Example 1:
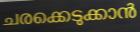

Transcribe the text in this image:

ചരക്കെടുക്കാൻ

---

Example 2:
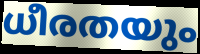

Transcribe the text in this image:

ധീരതയും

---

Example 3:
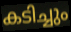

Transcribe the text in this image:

കടിച്ചും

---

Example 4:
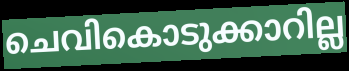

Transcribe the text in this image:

ചെവികൊടുക്കാറില്ല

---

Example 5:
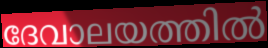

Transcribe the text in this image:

ദേവാലയത്തിൽ